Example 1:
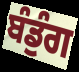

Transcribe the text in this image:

ਬੰਡੁੰਗ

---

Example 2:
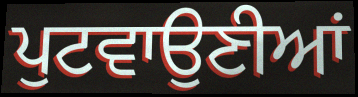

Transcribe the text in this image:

ਪੁਟਵਾਉਣੀਆਂ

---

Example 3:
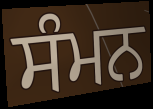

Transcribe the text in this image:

ਸੰਮਨ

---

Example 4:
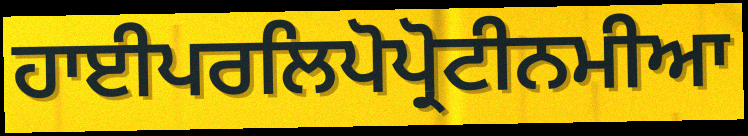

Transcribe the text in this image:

ਹਾਈਪਰਲਿਪੋਪ੍ਰੋਟੀਨਮੀਆ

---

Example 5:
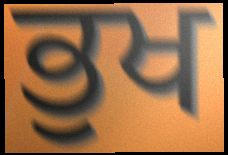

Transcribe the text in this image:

ਭੁਖ